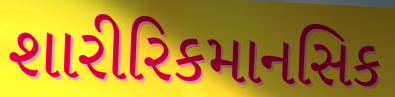
શારીરિકમાનસિક